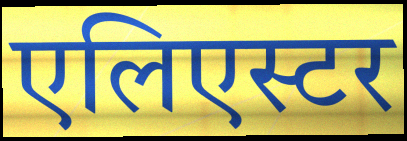
एलिएस्टर